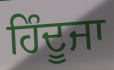
ਹਿੰਦੂਜਾ